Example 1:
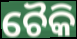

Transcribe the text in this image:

ଚୈକି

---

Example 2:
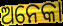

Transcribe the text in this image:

ଅନେକା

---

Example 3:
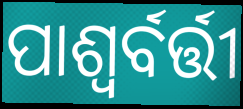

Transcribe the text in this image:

ପାଶ୍ୱର୍ବର୍ତ୍ତୀ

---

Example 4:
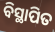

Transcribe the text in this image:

ବିସ୍ଥାପିତ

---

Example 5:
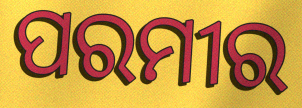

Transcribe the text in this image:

ପରମୀର